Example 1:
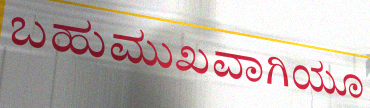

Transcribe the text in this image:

ಬಹುಮುಖವಾಗಿಯೂ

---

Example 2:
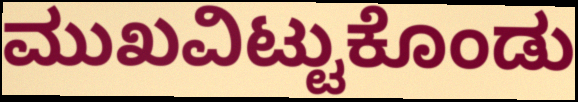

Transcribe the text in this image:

ಮುಖವಿಟ್ಟುಕೊಂಡು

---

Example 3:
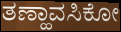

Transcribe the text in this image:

ತಣ್ಹಾವಸಿಕೋ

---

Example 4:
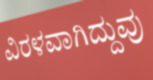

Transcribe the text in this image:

ವಿರಳವಾಗಿದ್ದುವು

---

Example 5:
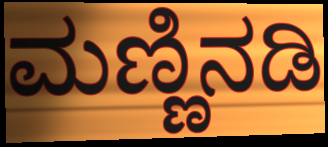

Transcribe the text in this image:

ಮಣ್ಣಿನಡಿ